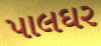
પાલઘર